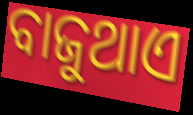
ବାଜୁଥାଏ